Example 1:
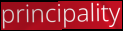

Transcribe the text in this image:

principality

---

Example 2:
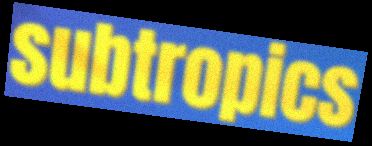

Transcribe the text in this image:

subtropics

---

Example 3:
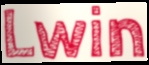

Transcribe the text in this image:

Lwin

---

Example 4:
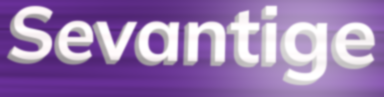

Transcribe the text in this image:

Sevantige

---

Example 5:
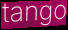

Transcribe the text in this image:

tango